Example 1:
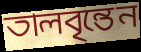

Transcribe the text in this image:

তালবৃন্তেন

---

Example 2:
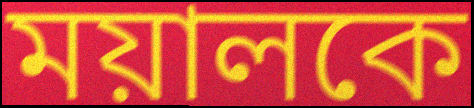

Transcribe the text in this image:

ময়ালকে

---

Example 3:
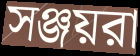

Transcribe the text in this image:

সঞ্জয়রা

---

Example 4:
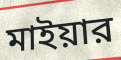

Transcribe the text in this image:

মাইয়ার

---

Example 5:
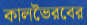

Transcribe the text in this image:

কালভৈরবের